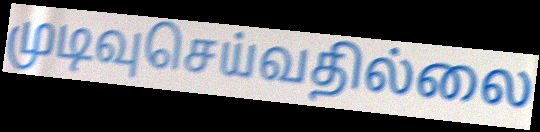
முடிவுசெய்வதில்லை